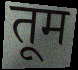
तूम